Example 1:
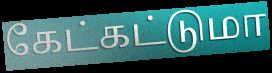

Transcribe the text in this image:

கேட்கட்டுமா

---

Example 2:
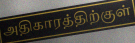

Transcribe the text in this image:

அதிகாரத்திற்குள்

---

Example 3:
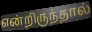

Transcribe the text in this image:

என்றிருந்தால்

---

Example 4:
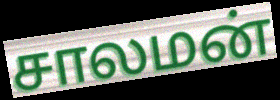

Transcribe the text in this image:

சாலமன்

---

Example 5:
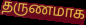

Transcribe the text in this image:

தருணமாக